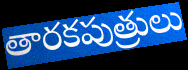
తారకపుత్రులు